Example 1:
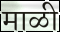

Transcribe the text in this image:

माळी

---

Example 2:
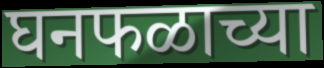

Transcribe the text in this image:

घनफळाच्या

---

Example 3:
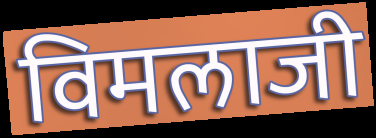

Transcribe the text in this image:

विमलाजी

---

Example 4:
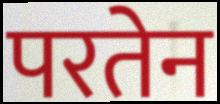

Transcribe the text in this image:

परतेन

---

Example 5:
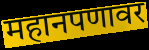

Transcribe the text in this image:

महानपणावर